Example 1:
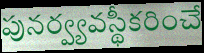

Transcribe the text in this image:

పునర్వ్యవస్థీకరించే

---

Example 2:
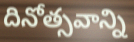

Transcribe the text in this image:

దినోత్సవాన్ని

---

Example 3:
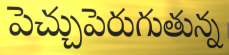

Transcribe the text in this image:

పెచ్చుపెరుగుతున్న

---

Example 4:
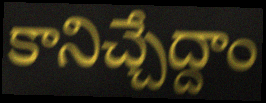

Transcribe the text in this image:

కానిచ్చేద్దాం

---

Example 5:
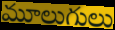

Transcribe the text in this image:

మూలుగులు